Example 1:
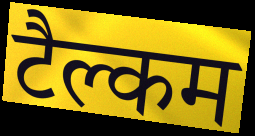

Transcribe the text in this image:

टैल्कम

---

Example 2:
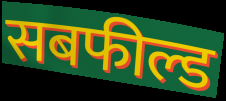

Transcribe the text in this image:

सबफील्ड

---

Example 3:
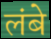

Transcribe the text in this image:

लंबे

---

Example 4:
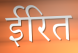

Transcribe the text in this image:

ईरित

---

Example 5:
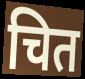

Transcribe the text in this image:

चित